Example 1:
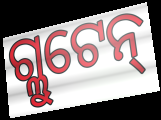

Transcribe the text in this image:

ଗ୍ଲୁଟେନ୍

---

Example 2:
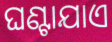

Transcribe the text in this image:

ଘଣ୍ଟାଯାଏ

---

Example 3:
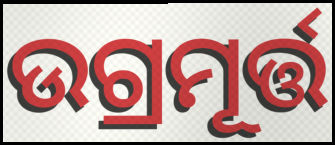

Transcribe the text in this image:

ଉଗ୍ରମୂର୍ତ୍ତ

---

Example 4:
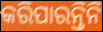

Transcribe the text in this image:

କରିପାରନ୍ତିନି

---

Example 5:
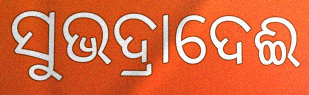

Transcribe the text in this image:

ସୁଭଦ୍ରାଦେଈ